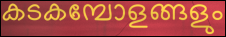
കടകമ്പോളങ്ങളും